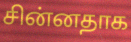
சின்னதாக